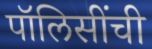
पॉलिसींची